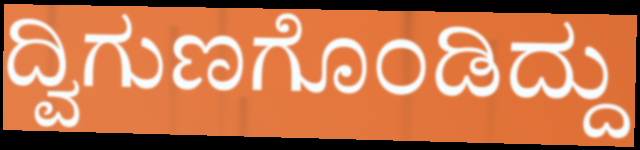
ದ್ವಿಗುಣಗೊಂಡಿದ್ದು